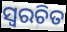
ସ୍ୱରଚିତ